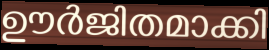
ഊർജിതമാക്കി